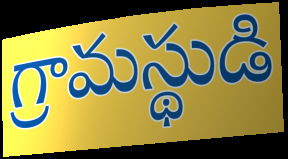
గ్రామస్థుడి